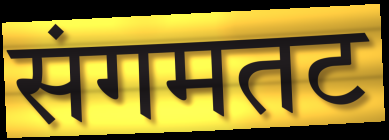
संगमतट